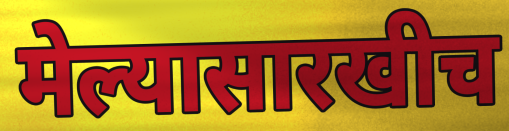
मेल्यासारखीच